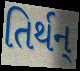
તિર્થન્